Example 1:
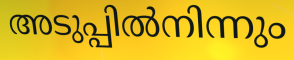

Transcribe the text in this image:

അടുപ്പിൽനിന്നും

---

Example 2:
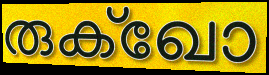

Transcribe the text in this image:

രുക്ഖോ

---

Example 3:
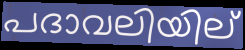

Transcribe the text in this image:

പദാവലിയില്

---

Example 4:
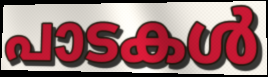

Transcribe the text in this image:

പാടകൾ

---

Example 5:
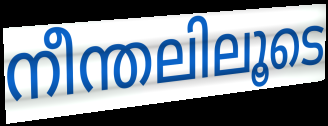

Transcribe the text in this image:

നീന്തലിലൂടെ